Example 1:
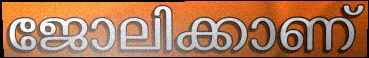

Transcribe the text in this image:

ജോലിക്കാണ്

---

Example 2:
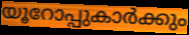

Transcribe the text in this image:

യൂറോപ്പുകാർക്കും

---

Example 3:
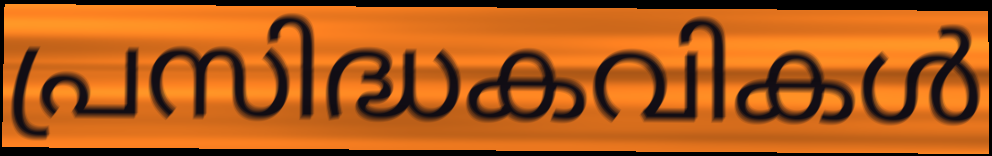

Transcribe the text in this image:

പ്രസിദ്ധകവികൾ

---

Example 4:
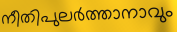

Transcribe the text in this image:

നീതിപുലർത്താനാവും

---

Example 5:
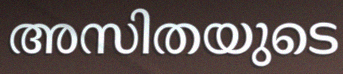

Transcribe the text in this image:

അസിതയുടെ